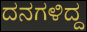
ದನಗಳಿದ್ದ